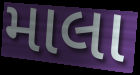
માલા